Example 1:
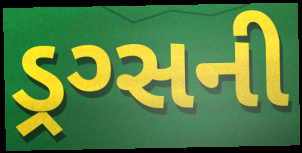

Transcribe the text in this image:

ડ્રગ્સની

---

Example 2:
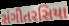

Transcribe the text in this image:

સંગીતરસિયા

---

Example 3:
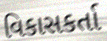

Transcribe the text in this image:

વિકાસકર્તા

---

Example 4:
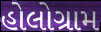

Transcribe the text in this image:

હોલોગ્રામ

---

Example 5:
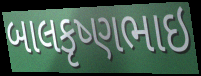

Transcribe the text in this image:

બાલકૃષ્ણભાઇ